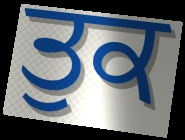
ਤੁਕ